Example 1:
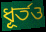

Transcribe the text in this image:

ধূর্তও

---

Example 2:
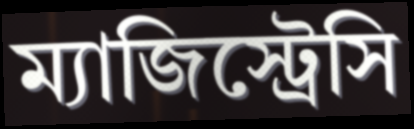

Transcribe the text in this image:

ম্যাজিস্ট্রেসি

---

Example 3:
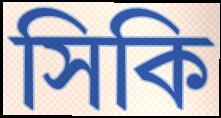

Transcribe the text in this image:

সিকি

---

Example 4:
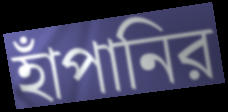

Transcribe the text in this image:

হাঁপানির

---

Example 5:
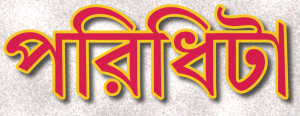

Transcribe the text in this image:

পরিধিটা